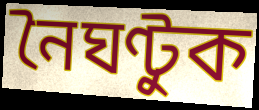
নৈঘণ্টুক